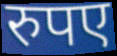
रुपए